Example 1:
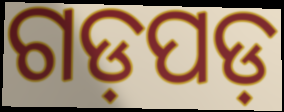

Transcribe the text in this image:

ଗଡ଼ପଡ଼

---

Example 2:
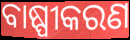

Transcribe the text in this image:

ବାଷ୍ପୀକରଣ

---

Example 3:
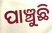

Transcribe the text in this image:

ପାଞ୍ଚୁଛି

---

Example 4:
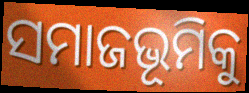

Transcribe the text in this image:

ସମାଜଭୂମିକୁ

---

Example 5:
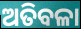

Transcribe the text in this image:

ଅତିବଳା